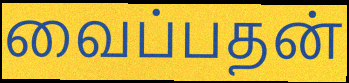
வைப்பதன்